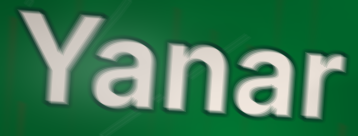
Yanar